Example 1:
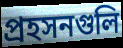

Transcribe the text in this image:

প্রহসনগুলি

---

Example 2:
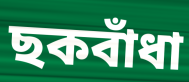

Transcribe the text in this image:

ছকবাঁধা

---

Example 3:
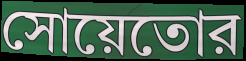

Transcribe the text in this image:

সোয়েতোর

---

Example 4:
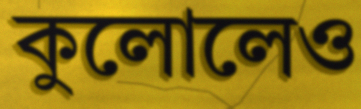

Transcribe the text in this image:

কুলোলেও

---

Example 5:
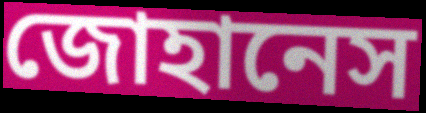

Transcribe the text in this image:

জোহানেস